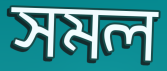
সমল